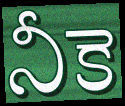
నీకె